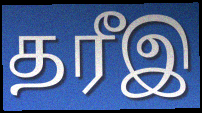
தரீஇ